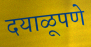
दयाळूपणे